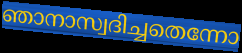
ഞാനാസ്വദിച്ചതെന്നോ